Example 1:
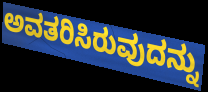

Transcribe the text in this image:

ಅವತರಿಸಿರುವುದನ್ನು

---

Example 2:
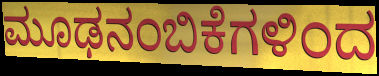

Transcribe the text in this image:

ಮೂಢನಂಬಿಕೆಗಳಿಂದ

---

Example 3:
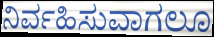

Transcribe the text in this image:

ನಿರ್ವಹಿಸುವಾಗಲೂ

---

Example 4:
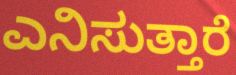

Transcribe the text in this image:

ಎನಿಸುತ್ತಾರೆ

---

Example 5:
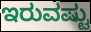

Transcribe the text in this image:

ಇರುವಷ್ಟು